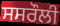
ਸਸਰੌਲੀ